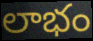
లాభం